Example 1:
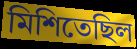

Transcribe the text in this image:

মিশিতেছিল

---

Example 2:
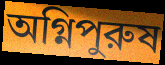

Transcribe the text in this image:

অগ্নিপুরুষ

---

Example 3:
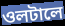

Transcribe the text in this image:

ওলটালে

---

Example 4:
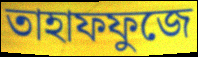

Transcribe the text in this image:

তাহাফফুজে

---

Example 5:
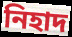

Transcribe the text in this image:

নিহাদ